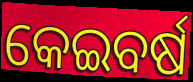
କେଇବର୍ଷ